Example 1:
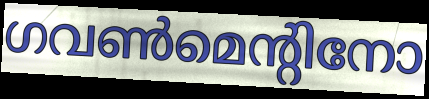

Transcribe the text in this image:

ഗവൺമെന്റിനോ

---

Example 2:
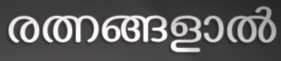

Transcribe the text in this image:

രത്നങ്ങളാൽ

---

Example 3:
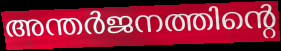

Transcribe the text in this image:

അന്തർജനത്തിന്റെ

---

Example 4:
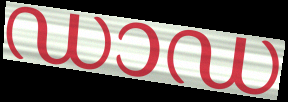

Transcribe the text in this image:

ഡാഡ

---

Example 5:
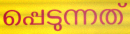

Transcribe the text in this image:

പ്പെടുന്നത്